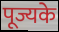
पूज्यके